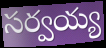
సర్వయ్య